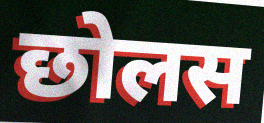
छोलस